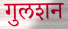
गुलशन